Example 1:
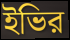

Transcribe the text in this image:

ইভির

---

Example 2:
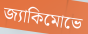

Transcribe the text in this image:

জ্যাকিমোভে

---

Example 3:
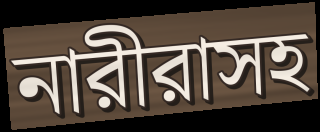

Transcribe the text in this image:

নারীরাসহ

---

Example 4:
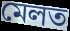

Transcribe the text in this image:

মেলত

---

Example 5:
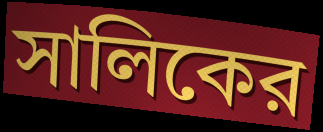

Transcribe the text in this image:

সালিকের